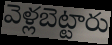
వెళ్లబెట్టారు